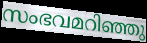
സംഭവമറിഞ്ഞു